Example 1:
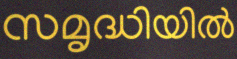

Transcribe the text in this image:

സമൃദ്ധിയിൽ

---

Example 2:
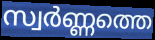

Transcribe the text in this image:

സ്വർണ്ണത്തെ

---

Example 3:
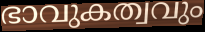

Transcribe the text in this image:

ഭാവുകത്വവും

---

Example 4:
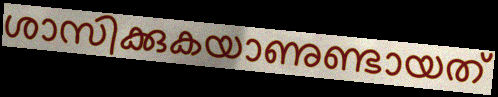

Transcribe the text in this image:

ശാസിക്കുകയാണുണ്ടായത്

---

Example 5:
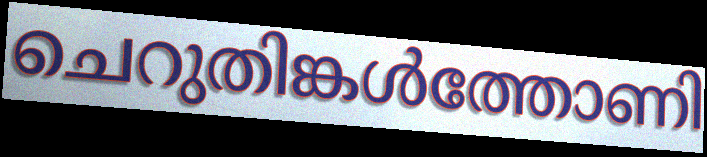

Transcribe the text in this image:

ചെറുതിങ്കൾത്തോണി